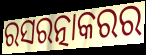
ରସରତ୍ନାକରର